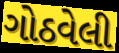
ગોઠવેલી